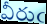
వీరుఁ